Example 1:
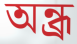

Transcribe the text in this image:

অন্ধ্ৰ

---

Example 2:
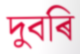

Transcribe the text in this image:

দুবৰি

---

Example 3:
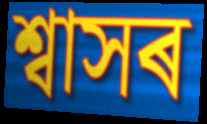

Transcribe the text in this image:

শ্বাসৰ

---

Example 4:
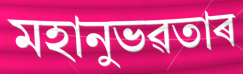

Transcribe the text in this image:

মহানুভৱতাৰ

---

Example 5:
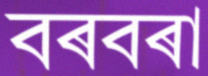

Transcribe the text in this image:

বৰবৰা